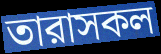
তারাসকল